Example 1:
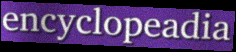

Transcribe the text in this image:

encyclopeadia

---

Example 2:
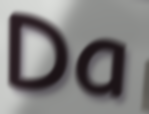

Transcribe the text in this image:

Da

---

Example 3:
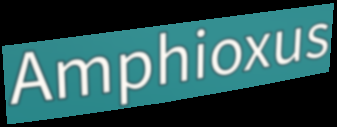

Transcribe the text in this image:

Amphioxus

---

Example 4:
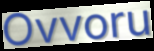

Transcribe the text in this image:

Ovvoru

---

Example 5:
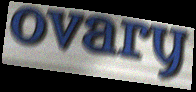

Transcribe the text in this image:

ovary